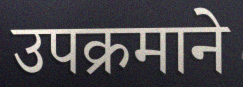
उपक्रमाने